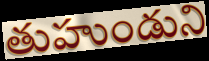
తుహుండుని